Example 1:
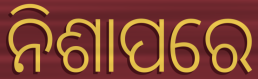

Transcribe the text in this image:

ନିଶାପରେ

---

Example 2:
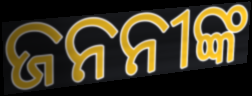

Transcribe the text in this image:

ଜନନୀଙ୍କ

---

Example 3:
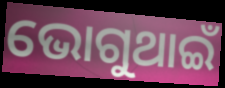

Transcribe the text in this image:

ଭୋଗୁଥାଇଁ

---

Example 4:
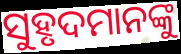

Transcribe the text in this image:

ସୁହୃଦମାନଙ୍କୁ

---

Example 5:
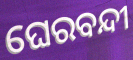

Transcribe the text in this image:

ଘେରବନ୍ଦୀ